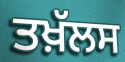
ਤਖ਼ੱਲਸ